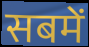
सबमें